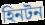
হিনটন